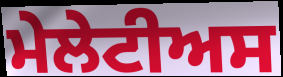
ਮੇਲੇਟੀਅਸ